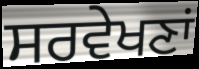
ਸਰਵੇਖਣਾਂ